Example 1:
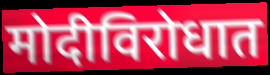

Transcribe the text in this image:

मोदीविरोधात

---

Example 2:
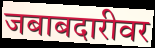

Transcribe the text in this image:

जबाबदारीवर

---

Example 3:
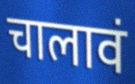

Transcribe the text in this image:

चालावं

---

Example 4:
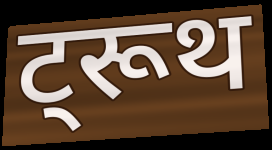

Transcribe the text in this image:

ट्रूथ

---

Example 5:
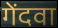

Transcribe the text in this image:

गेंदवा